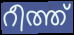
റീത്ത്